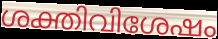
ശക്തിവിശേഷം